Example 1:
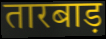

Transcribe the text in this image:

तारबाड़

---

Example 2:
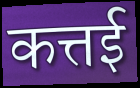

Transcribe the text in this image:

कत्तई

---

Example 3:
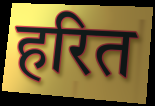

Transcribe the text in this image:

हरित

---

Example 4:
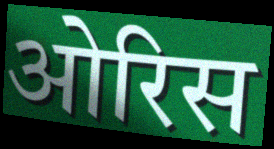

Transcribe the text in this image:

ओरिस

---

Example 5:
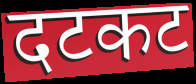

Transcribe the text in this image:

दटकट